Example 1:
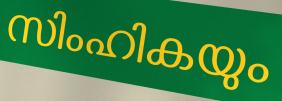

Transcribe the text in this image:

സിംഹികയും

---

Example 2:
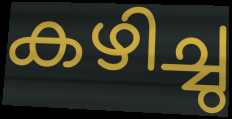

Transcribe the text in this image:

കഴിച്ചു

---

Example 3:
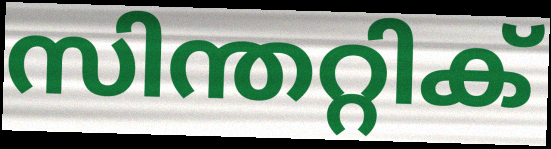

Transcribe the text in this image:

സിന്തറ്റിക്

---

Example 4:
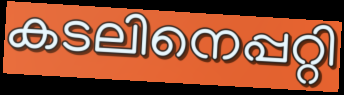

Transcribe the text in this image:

കടലിനെപ്പറ്റി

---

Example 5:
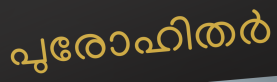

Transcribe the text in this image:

പുരോഹിതർ